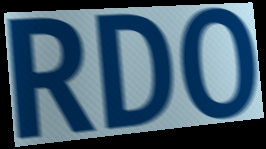
RDO